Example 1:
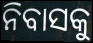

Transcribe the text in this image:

ନିବାସକୁ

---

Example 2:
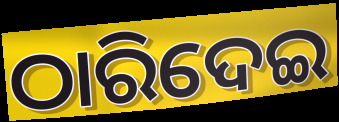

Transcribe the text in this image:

ଠାରିଦେଇ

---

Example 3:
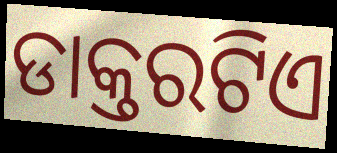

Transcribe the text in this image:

ଡାକ୍ତରଟିଏ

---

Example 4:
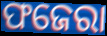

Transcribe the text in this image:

ଫଜେରା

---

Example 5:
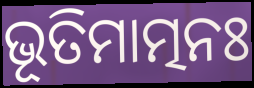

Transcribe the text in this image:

ଭୂତିମାତ୍ମନଃ